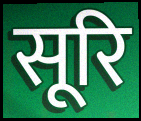
सूरि